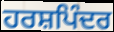
ਹਰਸ਼ਪਿੰਦਰ